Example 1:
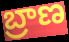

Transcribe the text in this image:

బ్రాణ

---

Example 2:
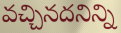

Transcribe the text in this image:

వచ్చినదనిన్ని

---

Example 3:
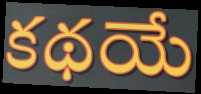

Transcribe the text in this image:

కథయే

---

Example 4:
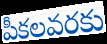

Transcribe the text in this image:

పీకలవరకు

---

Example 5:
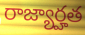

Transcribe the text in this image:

రాజ్యార్హత